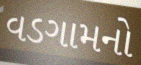
વડગામનો